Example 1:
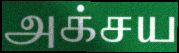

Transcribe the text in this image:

அக்சய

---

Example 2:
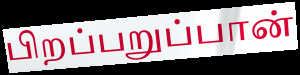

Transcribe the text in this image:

பிறப்பறுப்பான்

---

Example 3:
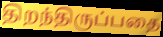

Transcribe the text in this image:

திறந்திருப்பதை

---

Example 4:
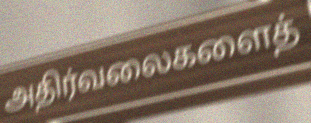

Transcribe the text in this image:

அதிர்வலைகளைத்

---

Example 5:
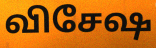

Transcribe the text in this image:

விசேஷ